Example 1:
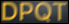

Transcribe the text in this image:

DPQT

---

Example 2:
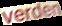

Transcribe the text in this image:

verden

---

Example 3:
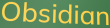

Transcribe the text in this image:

Obsidian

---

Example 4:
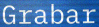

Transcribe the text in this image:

Grabar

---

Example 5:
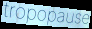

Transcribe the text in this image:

tropopause